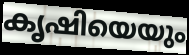
കൃഷിയെയും